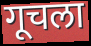
गूचला